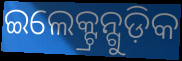
ଇଲେକ୍ଟ୍ରନ୍ଗୁଡ଼ିକ